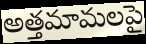
అత్తమామలపై